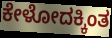
ಕೇಳೋದಕ್ಕಿಂತ